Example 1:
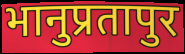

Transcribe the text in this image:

भानुप्रतापुर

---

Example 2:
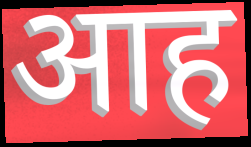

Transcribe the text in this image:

आह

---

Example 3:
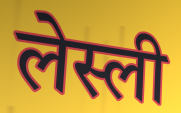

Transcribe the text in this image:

लेस्ली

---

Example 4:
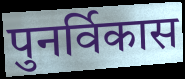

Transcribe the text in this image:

पुनर्विकास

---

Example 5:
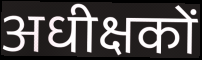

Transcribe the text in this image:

अधीक्षकों